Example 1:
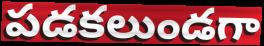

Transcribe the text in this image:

పడకలుండగా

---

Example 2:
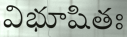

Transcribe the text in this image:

విభూషితః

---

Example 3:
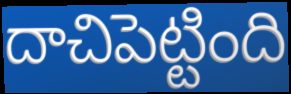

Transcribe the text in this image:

దాచిపెట్టింది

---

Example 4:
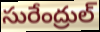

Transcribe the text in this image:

సురేంద్రుల్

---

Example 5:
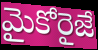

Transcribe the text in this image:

మైకోరైజే